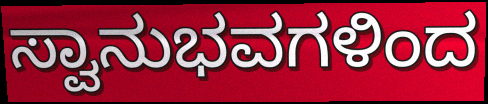
ಸ್ವಾನುಭವಗಳಿಂದ